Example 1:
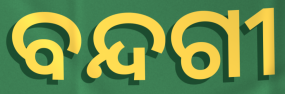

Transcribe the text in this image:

ବନ୍ଦଗୀ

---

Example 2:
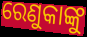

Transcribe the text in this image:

ରେଣୁକାଙ୍କୁ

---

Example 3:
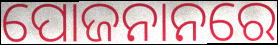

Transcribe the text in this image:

ପୋଜନାନରେ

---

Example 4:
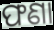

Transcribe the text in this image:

ଫଣା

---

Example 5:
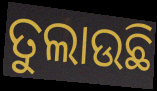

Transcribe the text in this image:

ତୁଲାଉଛି